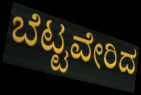
ಬೆಟ್ಟವೇರಿದ